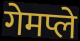
गेमप्ले